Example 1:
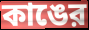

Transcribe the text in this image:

কাঙের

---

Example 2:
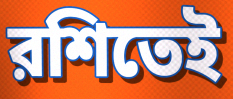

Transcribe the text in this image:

রশিতেই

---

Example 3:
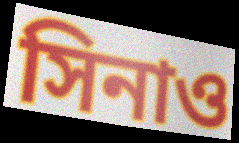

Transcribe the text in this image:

সিনাও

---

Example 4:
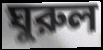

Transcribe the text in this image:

ঘুরুল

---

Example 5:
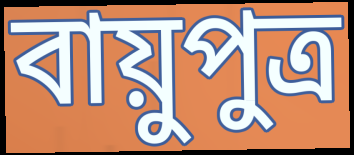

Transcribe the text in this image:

বায়ুপুত্র